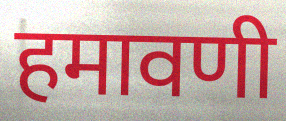
हमावणी